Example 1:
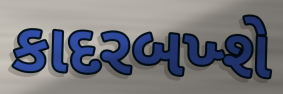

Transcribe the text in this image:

કાદરબખ્શે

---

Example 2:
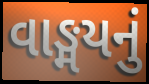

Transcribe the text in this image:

વાઙ્મયનું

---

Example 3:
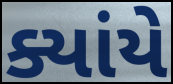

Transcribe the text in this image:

ક્યાંયે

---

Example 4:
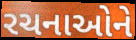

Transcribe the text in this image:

રચનાઓને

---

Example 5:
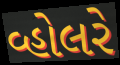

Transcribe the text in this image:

વ્હોલરે